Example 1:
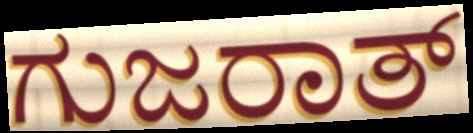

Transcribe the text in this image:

ಗುಜರಾತ್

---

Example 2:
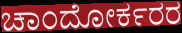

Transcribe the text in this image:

ಚಾಂದೋರ್ಕರರ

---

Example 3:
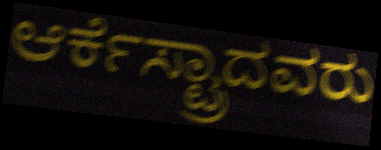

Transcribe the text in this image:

ಆರ್ಕೆಸ್ಟ್ರಾದವರು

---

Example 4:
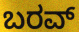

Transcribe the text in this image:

ಬರವ್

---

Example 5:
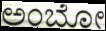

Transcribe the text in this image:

ಅಂಬೋ